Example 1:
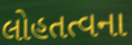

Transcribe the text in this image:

લોહતત્વના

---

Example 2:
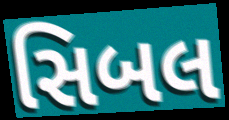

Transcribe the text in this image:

સિબલ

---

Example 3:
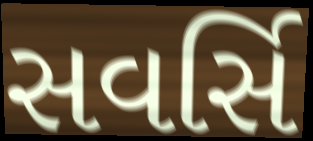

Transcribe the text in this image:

સવર્સિ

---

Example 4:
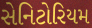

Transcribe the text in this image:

સેનિટોરિયમ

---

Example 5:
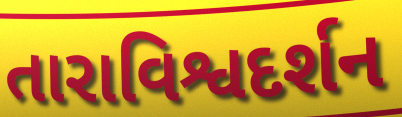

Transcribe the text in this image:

તારાવિશ્વદર્શન